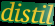
distil